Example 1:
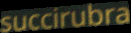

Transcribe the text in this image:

succirubra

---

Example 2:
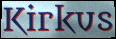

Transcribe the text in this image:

Kirkus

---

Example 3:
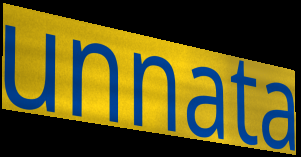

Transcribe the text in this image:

unnata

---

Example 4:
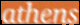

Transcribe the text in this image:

athens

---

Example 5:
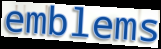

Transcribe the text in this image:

emblems